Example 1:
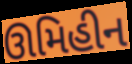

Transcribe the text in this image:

ઊમિહીન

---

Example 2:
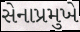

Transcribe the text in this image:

સેનાપ્રમુખે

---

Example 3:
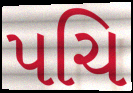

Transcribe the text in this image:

પચિ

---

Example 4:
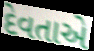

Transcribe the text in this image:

દેવતાએ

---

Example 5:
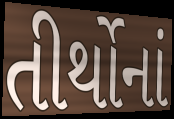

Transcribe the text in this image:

તીર્થોનાં